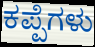
ಕಪ್ಪೆಗಳು